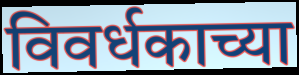
विवर्धकाच्या